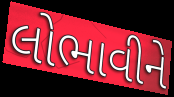
લોભાવીને